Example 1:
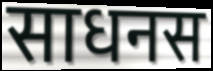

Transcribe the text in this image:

साधनस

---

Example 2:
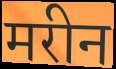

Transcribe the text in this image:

मरीन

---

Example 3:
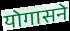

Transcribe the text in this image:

योगासने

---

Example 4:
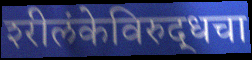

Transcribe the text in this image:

श्रीलंकेविरुद्धचा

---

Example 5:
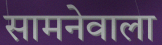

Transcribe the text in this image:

सामनेवाला